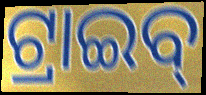
ଟ୍ରାଇବ୍